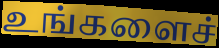
உங்களைச்